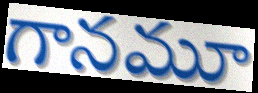
గానమూ